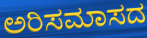
ಅರಿಸಮಾಸದ